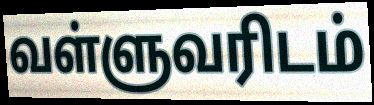
வள்ளுவரிடம்